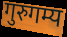
गुरुगम्य